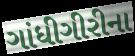
ગાંધીગીરીના